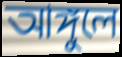
আঙ্গুলে